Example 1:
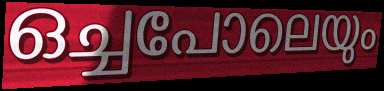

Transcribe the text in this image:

ഒച്ചപോലെയും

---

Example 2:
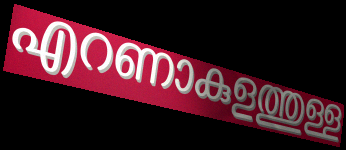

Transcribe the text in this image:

എറണാകുളത്തുള്ള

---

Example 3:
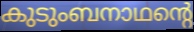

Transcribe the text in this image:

കുടുംബനാഥന്റെ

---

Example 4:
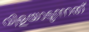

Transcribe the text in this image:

വിളയാടുന്നത്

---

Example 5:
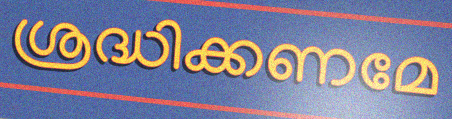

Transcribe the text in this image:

ശ്രദ്ധിക്കണമേ